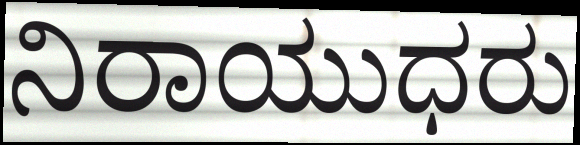
ನಿರಾಯುಧರು